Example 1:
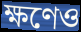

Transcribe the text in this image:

ক্ষণেও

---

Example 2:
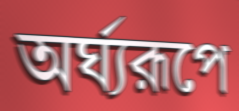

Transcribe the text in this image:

অর্ঘ্যরূপে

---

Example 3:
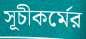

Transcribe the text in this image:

সূচীকর্মের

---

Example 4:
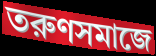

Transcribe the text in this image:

তরুণসমাজে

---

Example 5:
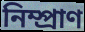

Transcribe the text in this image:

নিম্প্রাণ